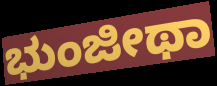
ಭುಂಜೀಥಾ